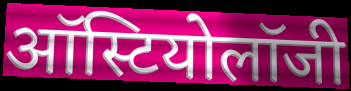
ऑस्टियोलॉजी